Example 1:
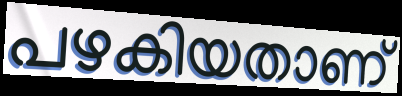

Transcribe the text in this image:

പഴകിയതാണ്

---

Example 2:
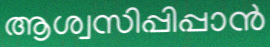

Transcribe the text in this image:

ആശ്വസിപ്പിപ്പാൻ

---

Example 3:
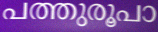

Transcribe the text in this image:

പത്തുരൂപാ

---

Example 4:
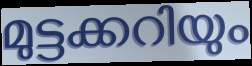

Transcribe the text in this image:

മുട്ടക്കറിയും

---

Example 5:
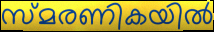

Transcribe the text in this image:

സ്മരണികയിൽ